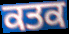
ਕਤਕ